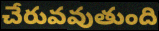
చేరువవుతుంది